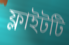
ফ্লাইটটি